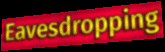
Eavesdropping